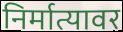
निर्मात्यावर